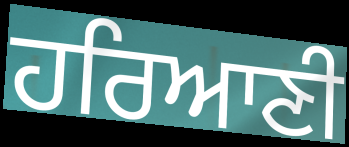
ਹਰਿਆਣੀ